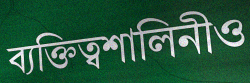
ব্যক্তিত্বশালিনীও